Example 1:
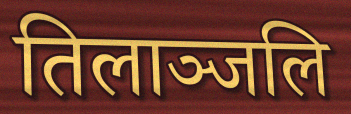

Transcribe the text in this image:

तिलाञ्जलि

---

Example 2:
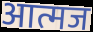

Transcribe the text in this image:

आत्मज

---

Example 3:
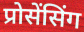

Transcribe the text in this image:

प्रोसेंसिंग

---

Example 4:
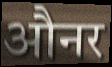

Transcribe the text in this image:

औनर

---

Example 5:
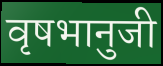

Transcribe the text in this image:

वृषभानुजी